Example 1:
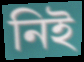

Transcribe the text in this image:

নিই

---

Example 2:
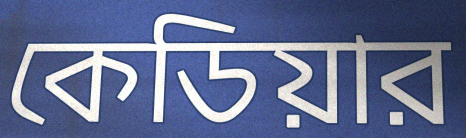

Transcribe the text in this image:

কেডিয়ার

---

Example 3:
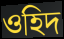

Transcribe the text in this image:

ওহিদ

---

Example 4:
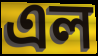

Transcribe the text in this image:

এল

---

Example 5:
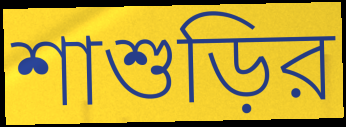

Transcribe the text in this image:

শাশুড়ির